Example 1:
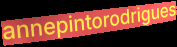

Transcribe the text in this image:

annepintorodrigues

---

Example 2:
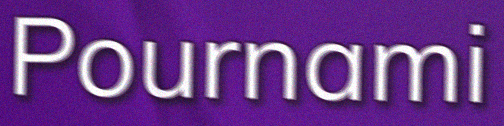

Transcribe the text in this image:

Pournami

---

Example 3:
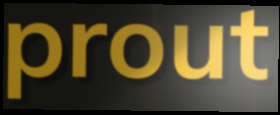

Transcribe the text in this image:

prout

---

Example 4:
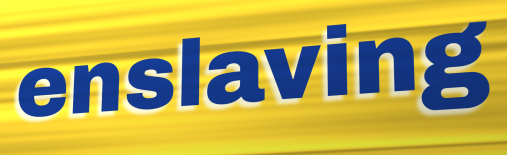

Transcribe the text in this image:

enslaving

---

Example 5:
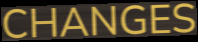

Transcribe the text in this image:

CHANGES